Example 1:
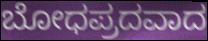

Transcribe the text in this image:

ಬೋಧಪ್ರದವಾದ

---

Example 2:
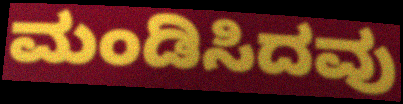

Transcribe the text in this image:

ಮಂಡಿಸಿದವು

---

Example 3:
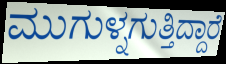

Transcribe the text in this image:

ಮುಗುಳ್ನಗುತ್ತಿದ್ದಾರೆ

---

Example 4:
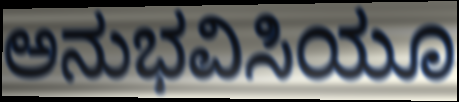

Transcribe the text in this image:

ಅನುಭವಿಸಿಯೂ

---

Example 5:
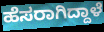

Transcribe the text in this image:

ಹೆಸರಾಗಿದ್ದಾಳೆ